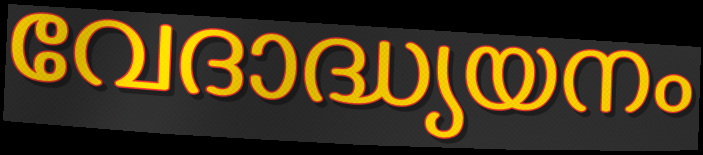
വേദാദ്ധ്യയനം